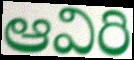
ఆవిరి